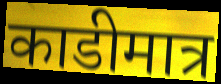
काडीमात्र